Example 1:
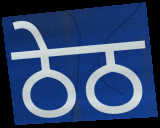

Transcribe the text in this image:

ਠੇਠ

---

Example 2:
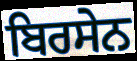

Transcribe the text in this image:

ਬਿਰਸੇਨ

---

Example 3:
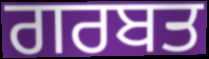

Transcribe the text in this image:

ਗਰਬਤ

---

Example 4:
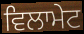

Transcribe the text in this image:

ਵਿਲਾਮੇਟ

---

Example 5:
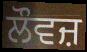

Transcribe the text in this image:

ਲੌਵਜ਼